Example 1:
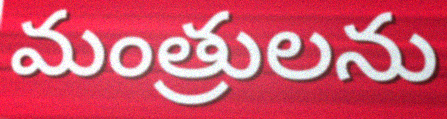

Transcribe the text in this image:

మంత్రులను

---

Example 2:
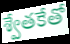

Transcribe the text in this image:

శ్వేతకేతో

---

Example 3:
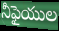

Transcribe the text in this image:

నీఫైయుల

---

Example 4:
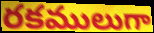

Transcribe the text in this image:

రకములుగా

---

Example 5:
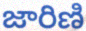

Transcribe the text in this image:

జారిణి